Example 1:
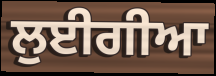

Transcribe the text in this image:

ਲੁਈਗੀਆ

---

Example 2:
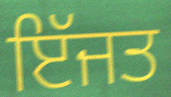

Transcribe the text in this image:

ਇੱਜਤ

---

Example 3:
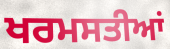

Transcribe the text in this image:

ਖਰਮਸਤੀਆਂ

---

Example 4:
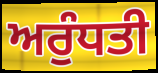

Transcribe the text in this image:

ਅਰੁੰਧਤੀ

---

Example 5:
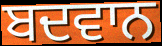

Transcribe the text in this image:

ਬਦਵਾਨ